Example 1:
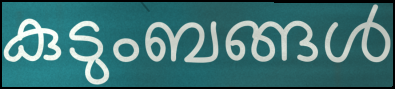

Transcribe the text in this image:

കുടുംബങ്ങൾ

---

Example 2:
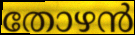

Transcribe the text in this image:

തോഴൻ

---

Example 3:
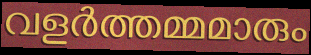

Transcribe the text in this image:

വളർത്തമ്മമാരും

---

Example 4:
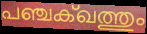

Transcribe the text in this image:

പഞ്ചക്ഖത്തും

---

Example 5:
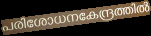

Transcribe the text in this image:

പരിശോധനകേന്ദ്രത്തിൽ